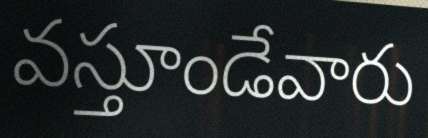
వస్తూండేవారు